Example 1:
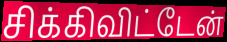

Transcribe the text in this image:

சிக்கிவிட்டேன்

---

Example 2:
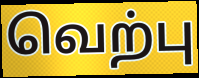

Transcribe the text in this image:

வெற்பு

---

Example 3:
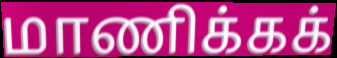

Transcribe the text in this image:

மாணிக்கக்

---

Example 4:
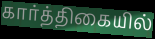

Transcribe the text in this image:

கார்த்திகையில்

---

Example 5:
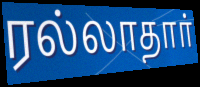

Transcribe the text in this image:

ரல்லாதார்